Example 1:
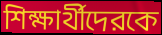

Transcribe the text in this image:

শিক্ষার্থীদেরকে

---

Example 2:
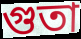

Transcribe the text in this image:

গুতা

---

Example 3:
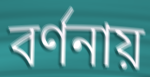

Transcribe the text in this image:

বর্ণনায়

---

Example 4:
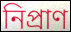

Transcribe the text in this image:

নিপ্রাণ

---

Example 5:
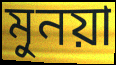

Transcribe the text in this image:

মুনয়া